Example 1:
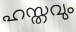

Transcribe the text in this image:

ഹസ്തവും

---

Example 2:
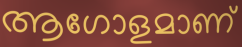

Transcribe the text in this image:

ആഗോളമാണ്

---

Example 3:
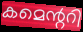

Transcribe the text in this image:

കമെന്ററി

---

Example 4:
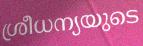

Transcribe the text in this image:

ശ്രീധന്യയുടെ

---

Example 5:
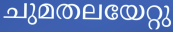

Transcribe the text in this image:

ചുമതലയേറ്റു